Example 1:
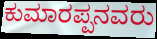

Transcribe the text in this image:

ಕುಮಾರಪ್ಪನವರು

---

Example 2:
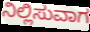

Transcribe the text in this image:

ನಿಲ್ಲಿಸುವಾಗ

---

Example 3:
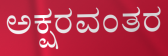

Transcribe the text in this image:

ಅಕ್ಷರವಂತರ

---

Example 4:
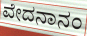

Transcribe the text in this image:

ವೇದನಾನಂ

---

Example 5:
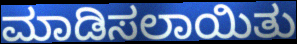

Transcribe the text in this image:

ಮಾಡಿಸಲಾಯಿತು